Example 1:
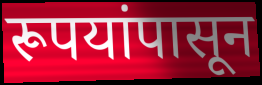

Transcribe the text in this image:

रूपयांपासून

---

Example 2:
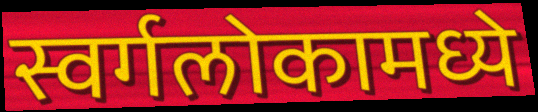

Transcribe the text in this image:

स्वर्गलोकामध्ये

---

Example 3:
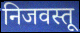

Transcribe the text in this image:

निजवस्तू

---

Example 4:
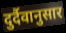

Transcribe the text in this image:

दुर्दैवानुसार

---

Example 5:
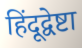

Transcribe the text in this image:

हिंदूद्वेष्टा